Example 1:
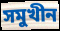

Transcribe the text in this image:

সমুখীন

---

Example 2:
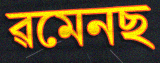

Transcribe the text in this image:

ৱমেনছ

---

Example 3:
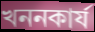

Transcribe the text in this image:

খননকাৰ্য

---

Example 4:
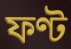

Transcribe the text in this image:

ফণ্ট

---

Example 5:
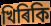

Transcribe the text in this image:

খিৰিকি